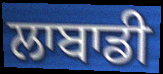
ਲਾਬਾਡੀ